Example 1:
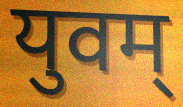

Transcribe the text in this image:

युवम्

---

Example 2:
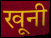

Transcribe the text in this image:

खूनी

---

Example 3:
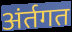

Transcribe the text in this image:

अंर्तगत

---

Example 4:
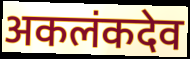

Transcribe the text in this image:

अकलंकदेव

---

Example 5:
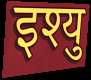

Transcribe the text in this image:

इश्यु